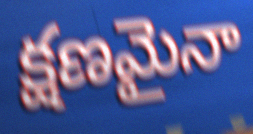
క్షణమైనా